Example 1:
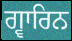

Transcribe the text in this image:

ਗ੍ਵਾਰਿਨ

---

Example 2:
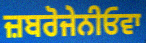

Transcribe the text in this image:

ਜ਼ਬਰੋਜੇਨੀਓਵਾ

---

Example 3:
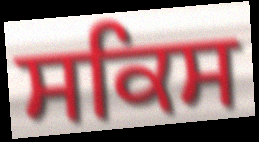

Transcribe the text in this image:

ਸਕਿਸ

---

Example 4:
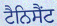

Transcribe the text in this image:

ਟੈਨਿਸੈਂਟ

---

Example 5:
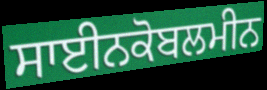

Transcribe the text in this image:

ਸਾਈਨਕੋਬਲਮੀਨ